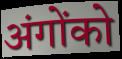
अंगोंको